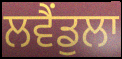
ਲਵੈਂਡੁਲਾ